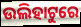
ଉଲିହାଟୁରେ